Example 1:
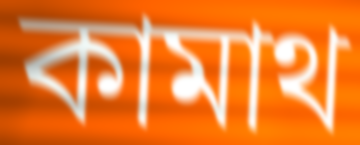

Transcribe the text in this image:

কামাথ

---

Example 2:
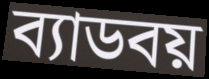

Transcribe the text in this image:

ব্যাডবয়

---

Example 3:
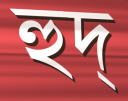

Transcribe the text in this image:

হুদ্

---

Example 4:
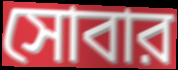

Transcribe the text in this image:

সোবার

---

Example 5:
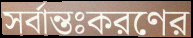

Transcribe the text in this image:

সর্বান্তঃকরণের